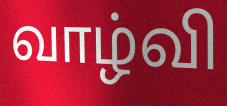
வாழ்வி